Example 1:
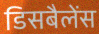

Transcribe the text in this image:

डिसबैलेंस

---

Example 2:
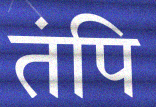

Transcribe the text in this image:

तंपि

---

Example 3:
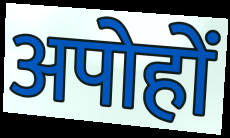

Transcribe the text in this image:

अपोहों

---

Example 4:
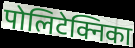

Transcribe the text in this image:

पोलिटेक्निका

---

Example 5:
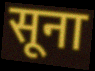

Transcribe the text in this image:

सूना